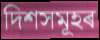
দিশসমূহৰ